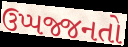
ઉપ્પજ્જનતો